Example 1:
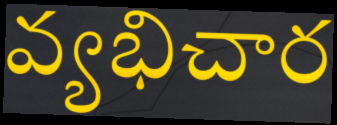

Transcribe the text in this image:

వ్యభిచార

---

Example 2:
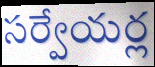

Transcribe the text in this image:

సర్వేయర్ల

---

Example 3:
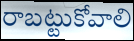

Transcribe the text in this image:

రాబట్టుకోవాలి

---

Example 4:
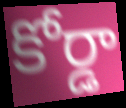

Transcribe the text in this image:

కోర్డా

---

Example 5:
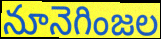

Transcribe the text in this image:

నూనెగింజల